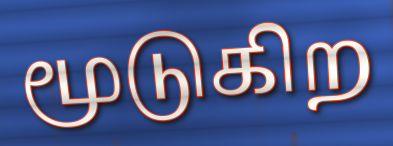
மூடுகிற